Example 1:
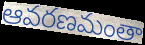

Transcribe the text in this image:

ఆవరణమంతా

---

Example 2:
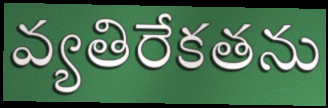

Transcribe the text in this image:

వ్యతిరేకతను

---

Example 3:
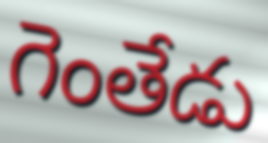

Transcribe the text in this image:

గెంతేడు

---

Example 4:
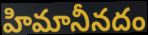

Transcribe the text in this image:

హిమానీనదం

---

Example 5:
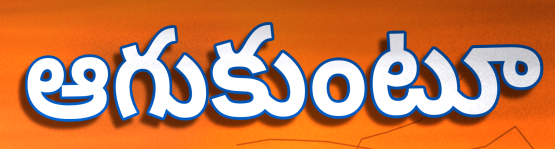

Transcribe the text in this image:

ఆగుకుంటూ